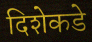
दिशेकडे